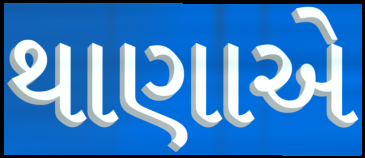
થાણાએ